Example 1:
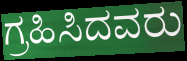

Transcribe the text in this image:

ಗ್ರಹಿಸಿದವರು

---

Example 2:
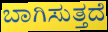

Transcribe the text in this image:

ಬಾಗಿಸುತ್ತದೆ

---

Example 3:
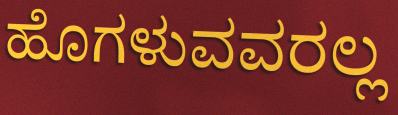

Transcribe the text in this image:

ಹೊಗಳುವವರಲ್ಲ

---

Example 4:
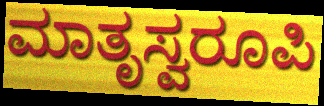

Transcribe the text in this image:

ಮಾತೃಸ್ವರೂಪಿ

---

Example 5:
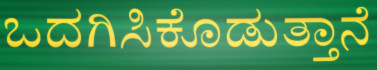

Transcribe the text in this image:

ಒದಗಿಸಿಕೊಡುತ್ತಾನೆ